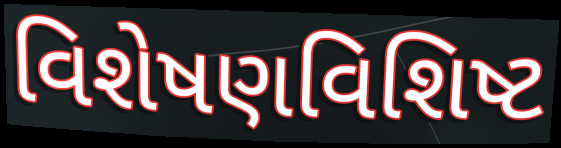
વિશેષણવિશિષ્ટ